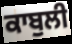
ਕਾਬੁਲੀ